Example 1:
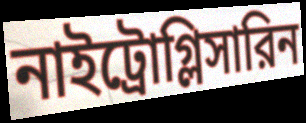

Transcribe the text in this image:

নাইট্রোগ্লিসারিন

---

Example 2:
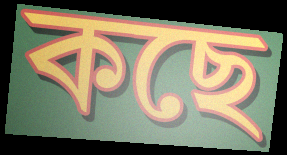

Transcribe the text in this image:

কছে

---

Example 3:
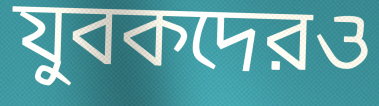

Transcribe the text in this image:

যুবকদেরও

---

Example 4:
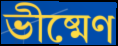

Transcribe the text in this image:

ভীষ্মেণ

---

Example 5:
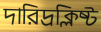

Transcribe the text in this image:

দারিদ্রক্লিষ্ট